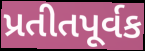
પ્રતીતપૂર્વક